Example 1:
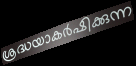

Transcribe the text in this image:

ശ്രദ്ധയാകർഷിക്കുന്ന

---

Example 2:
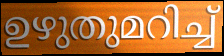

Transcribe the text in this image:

ഉഴുതുമറിച്ച്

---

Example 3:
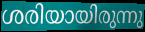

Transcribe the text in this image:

ശരിയായിരുന്നു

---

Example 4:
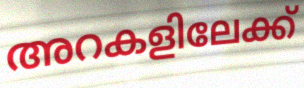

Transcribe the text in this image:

അറകളിലേക്ക്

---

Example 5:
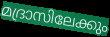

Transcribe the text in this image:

മദ്രാസിലേക്കും